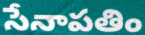
సేనాపతిం